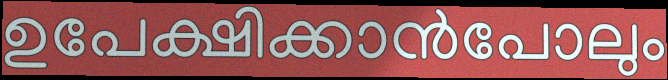
ഉപേക്ഷിക്കാൻപോലും